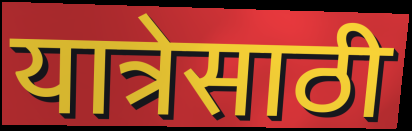
यात्रेसाठी